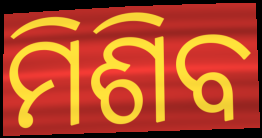
ମିଶିବ